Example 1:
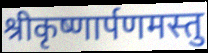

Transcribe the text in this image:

श्रीकृष्णार्पणमस्तु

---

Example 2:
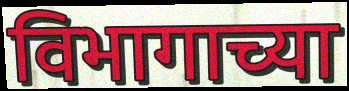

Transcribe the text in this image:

विभागाच्या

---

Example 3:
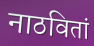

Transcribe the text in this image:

नाठवितां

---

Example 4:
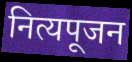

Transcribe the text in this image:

नित्यपूजन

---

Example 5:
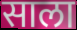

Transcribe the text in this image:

साला